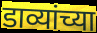
डाव्यांच्या